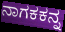
ನಾಗಕಕನ್ನ